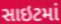
સાઇટમાં